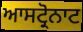
ਆਸਟ੍ਰੋਨਾਟ